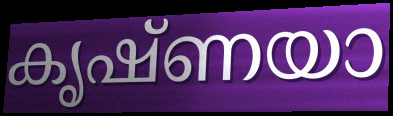
കൃഷ്ണയാ